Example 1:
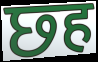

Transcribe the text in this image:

छ्ह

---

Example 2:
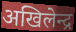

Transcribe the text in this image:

अखिलेन्द्र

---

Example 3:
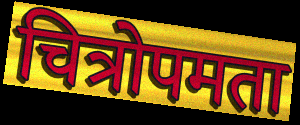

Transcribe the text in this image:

चित्रोपमता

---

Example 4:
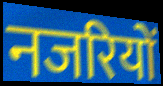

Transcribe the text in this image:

नजरियों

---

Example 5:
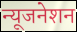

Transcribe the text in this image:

न्यूजनेशन